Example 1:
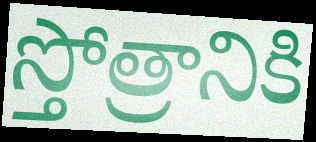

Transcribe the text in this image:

స్తోత్రానికి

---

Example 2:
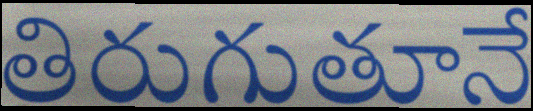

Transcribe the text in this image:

తిరుగుతూనే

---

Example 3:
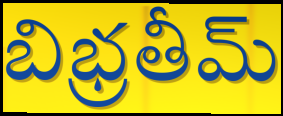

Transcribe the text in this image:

బిభ్రతీమ్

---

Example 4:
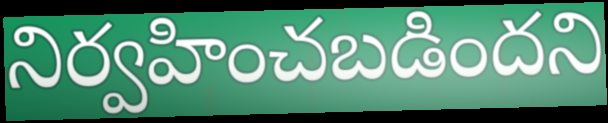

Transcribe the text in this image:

నిర్వహించబడిందని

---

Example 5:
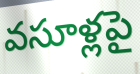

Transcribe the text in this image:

వసూళ్లపై